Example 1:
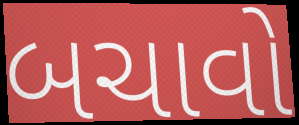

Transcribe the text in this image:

બચાવો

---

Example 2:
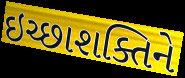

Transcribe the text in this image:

ઇચ્છાશક્તિને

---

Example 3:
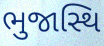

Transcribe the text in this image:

ભુજાસ્થિ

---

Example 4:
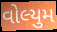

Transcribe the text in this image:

વોલ્યુમ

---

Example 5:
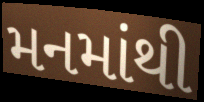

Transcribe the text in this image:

મનમાંથી